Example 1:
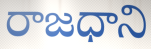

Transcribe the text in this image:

రాజధాని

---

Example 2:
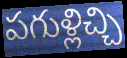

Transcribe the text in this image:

పగుళ్లిచ్చి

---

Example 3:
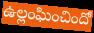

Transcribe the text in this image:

ఉల్లంఘించిందో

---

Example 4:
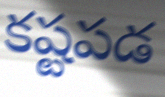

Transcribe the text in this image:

కష్టపడ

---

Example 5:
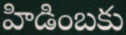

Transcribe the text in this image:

హిడింబకు